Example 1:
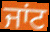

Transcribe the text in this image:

ਜਾਂਟ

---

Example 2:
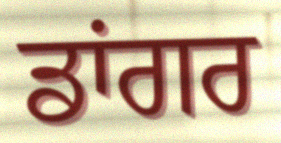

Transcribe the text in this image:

ਡਾਂਗਰ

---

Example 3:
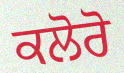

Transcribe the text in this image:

ਕਲੋਰੋ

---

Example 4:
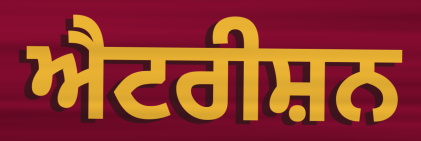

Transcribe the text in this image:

ਐਟਰੀਸ਼ਨ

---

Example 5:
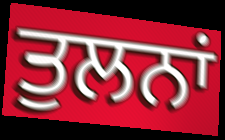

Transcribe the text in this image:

ਤੁਲਨਾਂ